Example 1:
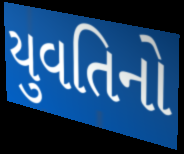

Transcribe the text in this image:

યુવતિનો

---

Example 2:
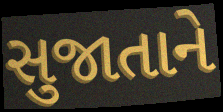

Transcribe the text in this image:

સુજાતાને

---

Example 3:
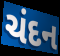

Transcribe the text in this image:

ચંદન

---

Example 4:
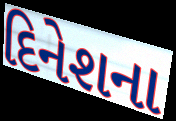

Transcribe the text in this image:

દિનેશના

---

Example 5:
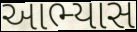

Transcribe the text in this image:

આભ્યાસ